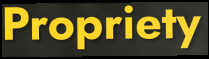
Propriety